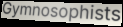
Gymnosophists